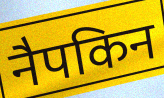
नैपकिन